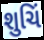
શુચિં